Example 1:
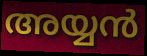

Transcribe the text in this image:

അയ്യൻ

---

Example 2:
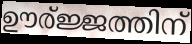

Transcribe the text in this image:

ഊര്ജ്ജത്തിന്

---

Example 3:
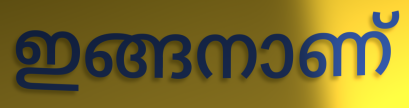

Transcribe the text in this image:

ഇങ്ങനാണ്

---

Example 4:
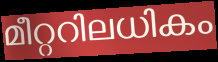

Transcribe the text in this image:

മീറ്ററിലധികം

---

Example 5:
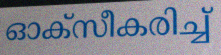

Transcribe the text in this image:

ഓക്സീകരിച്ച്